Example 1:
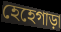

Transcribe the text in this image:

হেহেগাড়া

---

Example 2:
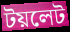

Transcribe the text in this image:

টয়লেট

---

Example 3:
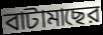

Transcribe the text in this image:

বাটামাছের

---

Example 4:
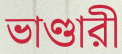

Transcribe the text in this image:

ভাণ্ডারী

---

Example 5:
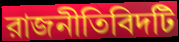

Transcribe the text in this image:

রাজনীতিবিদটি